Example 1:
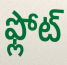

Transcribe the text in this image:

ఫ్లోట్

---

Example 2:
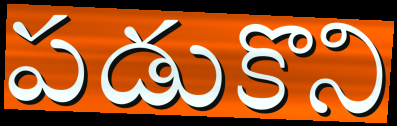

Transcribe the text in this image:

పడుకొని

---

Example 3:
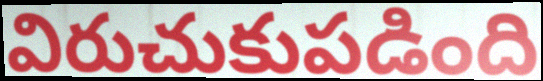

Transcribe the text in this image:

విరుచుకుపడింది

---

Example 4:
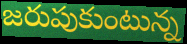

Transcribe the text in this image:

జరుపుకుంటున్న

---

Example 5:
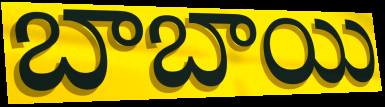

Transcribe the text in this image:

బాబాయి